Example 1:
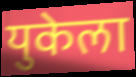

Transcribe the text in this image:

युकेला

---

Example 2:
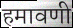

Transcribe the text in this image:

हमावणी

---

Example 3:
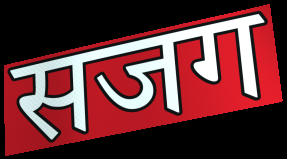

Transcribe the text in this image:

सजग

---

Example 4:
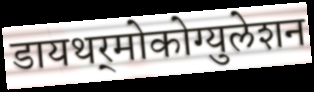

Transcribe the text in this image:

डायथर्मोकोग्युलेशन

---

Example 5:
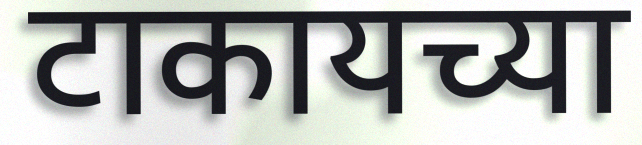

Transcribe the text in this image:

टाकायच्या